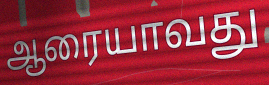
ஆரையாவது